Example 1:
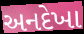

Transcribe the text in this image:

અનદેખા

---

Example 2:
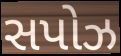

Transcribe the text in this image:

સપોઝ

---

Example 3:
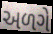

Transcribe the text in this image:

અળગે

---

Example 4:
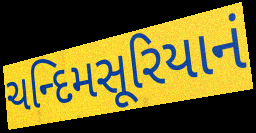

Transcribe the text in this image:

ચન્દિમસૂરિયાનં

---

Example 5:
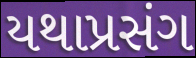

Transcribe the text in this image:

યથાપ્રસંગ